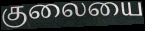
குலையை